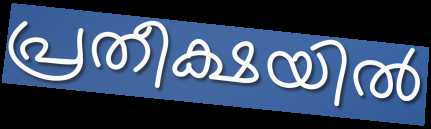
പ്രതീക്ഷയിൽ